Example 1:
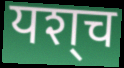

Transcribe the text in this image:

यश्च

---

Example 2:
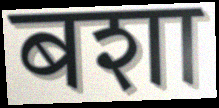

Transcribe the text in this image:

बशा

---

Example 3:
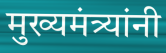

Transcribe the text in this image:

मुख्यमंत्र्यांनी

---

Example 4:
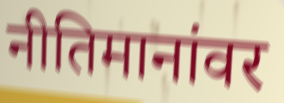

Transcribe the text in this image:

नीतिमानांवर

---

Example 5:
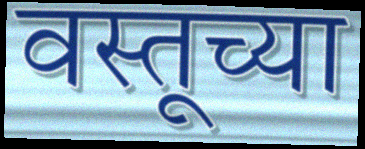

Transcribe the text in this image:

वस्तूच्या